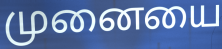
முனையை